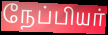
நேப்பியர்